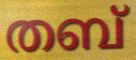
തബ്